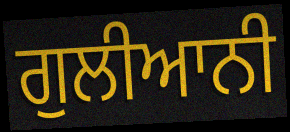
ਗੁਲੀਆਨੀ